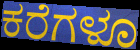
ಕರೆಗಳೂ